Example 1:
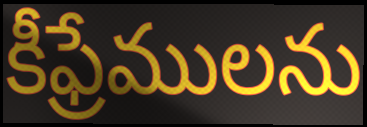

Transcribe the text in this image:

కీఫ్రేములను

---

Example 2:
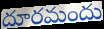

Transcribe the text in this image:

దూరమందు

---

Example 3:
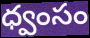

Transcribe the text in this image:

ధ్వంసం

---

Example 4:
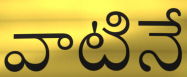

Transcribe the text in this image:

వాటినే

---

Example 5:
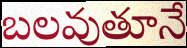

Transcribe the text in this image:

బలవుతూనే